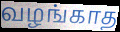
வழங்காத